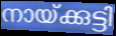
നായ്‌ക്കുട്ടി